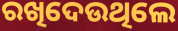
ରଖିଦେଉଥିଲେ